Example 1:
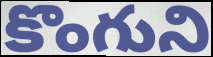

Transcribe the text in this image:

కొంగుని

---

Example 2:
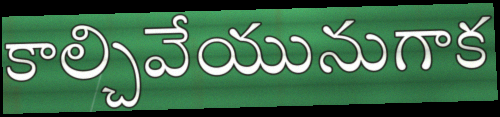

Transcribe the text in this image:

కాల్చివేయునుగాక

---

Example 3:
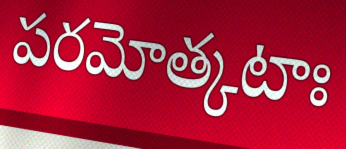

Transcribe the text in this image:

పరమోత్కటాః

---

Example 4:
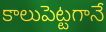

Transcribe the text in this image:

కాలుపెట్టగానే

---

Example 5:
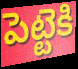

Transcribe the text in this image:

పెట్టెకి